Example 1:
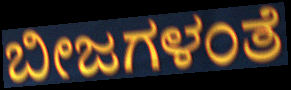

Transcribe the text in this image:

ಬೀಜಗಳಂತೆ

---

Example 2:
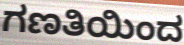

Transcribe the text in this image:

ಗಣತಿಯಿಂದ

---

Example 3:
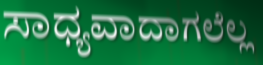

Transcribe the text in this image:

ಸಾಧ್ಯವಾದಾಗಲೆಲ್ಲ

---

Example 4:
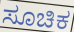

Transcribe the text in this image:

ಸೂಚಿಕ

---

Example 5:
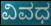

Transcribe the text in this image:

ವಿವಧ